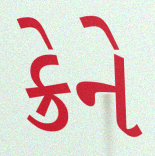
ક્રેને